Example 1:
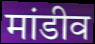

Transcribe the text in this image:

मांडीव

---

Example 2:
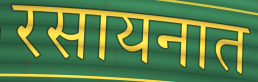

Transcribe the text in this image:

रसायनात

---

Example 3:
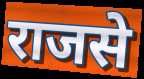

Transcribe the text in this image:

राजसे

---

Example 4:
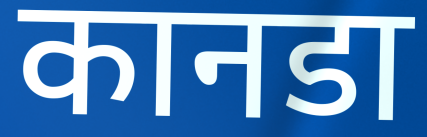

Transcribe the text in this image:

कानडा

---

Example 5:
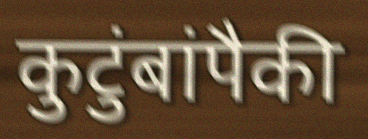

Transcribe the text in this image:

कुटुंबांपैकी